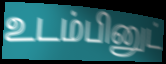
உடம்பினுட்